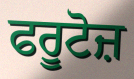
ਫਰੂਟੋਜ਼